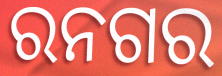
ରନଗର